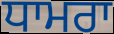
ਧਾਮਰਾ